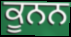
ਕੂਨਨ